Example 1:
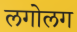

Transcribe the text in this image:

लगोलग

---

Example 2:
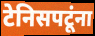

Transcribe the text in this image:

टेनिसपटूंना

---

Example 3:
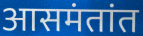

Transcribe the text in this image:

आसमंतांत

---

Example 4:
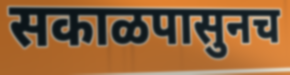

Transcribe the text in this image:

सकाळपासुनच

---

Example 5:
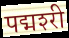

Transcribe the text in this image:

पद्मश्री